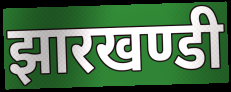
झारखण्डी